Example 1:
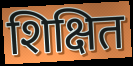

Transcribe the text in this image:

शिक्षित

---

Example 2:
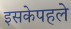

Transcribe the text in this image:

इसकेपहले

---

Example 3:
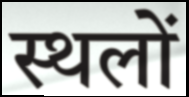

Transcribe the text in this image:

स्थलों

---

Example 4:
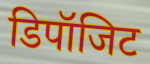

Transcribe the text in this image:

डिपॉजिट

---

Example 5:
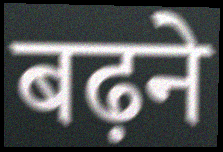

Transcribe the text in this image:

बढ़ने